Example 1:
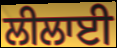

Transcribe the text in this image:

ਲੀਲਾਈ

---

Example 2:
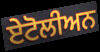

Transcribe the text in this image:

ਏਟੋਲੀਅਨ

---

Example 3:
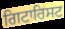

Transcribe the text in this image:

ਗਿਟਾਰਿਸਟ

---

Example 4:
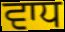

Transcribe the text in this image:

ਵਾਧ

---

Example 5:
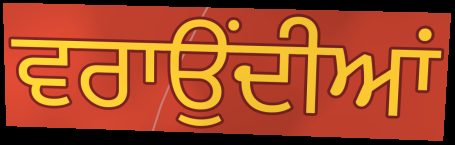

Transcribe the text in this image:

ਵਰਾਉਂਦੀਆਂ